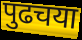
पुढचया